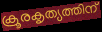
ക്രൂരകൃത്യത്തിന്